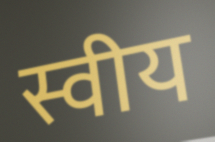
स्वीय